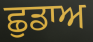
ਛੁਡਾਅ